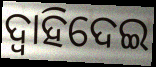
ଦ୍ୱାହିଦେଇ